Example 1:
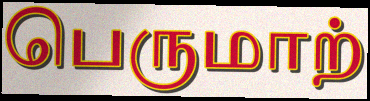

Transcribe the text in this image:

பெருமாற்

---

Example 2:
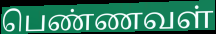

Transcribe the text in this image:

பெண்ணவள்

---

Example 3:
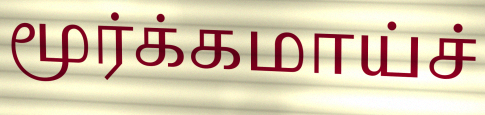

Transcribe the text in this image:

மூர்க்கமாய்ச்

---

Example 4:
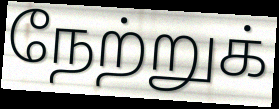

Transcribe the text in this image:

நேற்றுக்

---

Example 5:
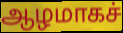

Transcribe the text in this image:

ஆழமாகச்